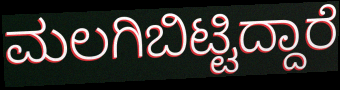
ಮಲಗಿಬಿಟ್ಟಿದ್ದಾರೆ